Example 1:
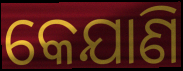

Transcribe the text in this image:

କେଯାଣି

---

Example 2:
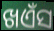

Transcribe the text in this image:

ଖଏଁସ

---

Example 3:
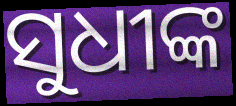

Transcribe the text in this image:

ସୁଧୀଙ୍କ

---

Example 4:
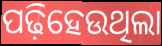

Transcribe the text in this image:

ପଢ଼ିହେଉଥିଲା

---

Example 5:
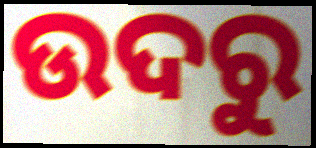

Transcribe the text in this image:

ଉଦରୁ